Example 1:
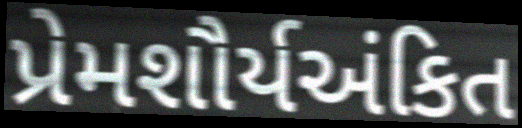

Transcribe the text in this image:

પ્રેમશૌર્યઅંકિત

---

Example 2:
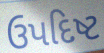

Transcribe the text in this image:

ઉપદિષ્ટ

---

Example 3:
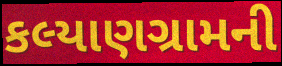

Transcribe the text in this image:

કલ્યાણગ્રામની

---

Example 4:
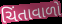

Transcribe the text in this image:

ચિંતાવાળો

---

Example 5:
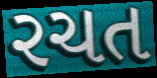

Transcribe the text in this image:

રચત